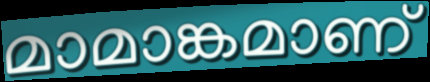
മാമാങ്കമാണ്